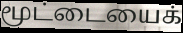
மூட்டையைக்